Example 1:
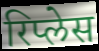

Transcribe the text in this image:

रिप्लेस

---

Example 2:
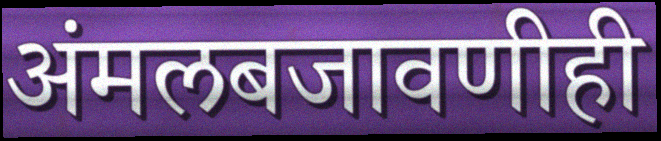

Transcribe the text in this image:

अंमलबजावणीही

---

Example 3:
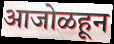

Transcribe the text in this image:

आजोळहून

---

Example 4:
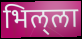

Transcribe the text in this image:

भिल्ला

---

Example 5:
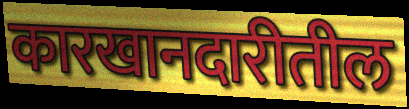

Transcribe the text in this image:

कारखानदारीतील